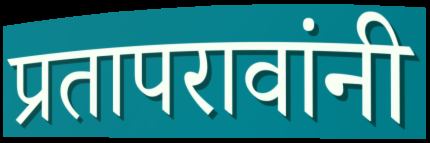
प्रतापरावांनी